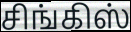
சிங்கிஸ்